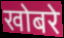
खोबरे